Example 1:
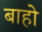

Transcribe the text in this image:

बाहो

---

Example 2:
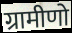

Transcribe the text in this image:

ग्रामीणो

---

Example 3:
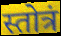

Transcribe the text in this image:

स्तोत्रं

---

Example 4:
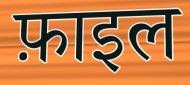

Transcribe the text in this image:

फ़ाइल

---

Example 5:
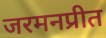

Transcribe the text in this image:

जरमनप्रीत